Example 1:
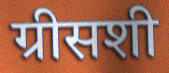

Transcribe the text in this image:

ग्रीसशी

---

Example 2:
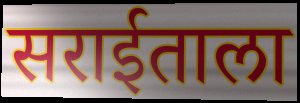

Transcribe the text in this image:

सराईताला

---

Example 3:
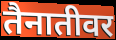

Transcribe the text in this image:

तैनातीवर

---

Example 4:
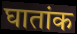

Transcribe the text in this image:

घातांक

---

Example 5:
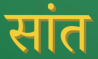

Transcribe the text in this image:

सांत